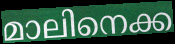
മാലിനെക്ക